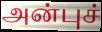
அன்புச்